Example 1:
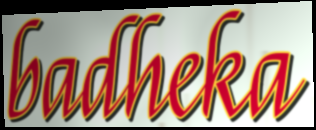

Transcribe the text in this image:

badheka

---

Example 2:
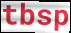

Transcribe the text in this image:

tbsp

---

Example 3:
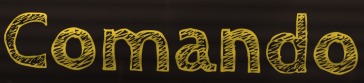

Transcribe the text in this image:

Comando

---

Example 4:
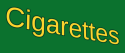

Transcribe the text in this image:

Cigarettes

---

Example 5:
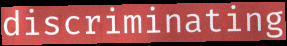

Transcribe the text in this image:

discriminating